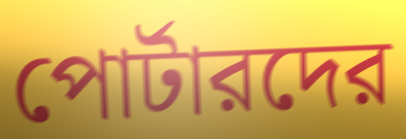
পোর্টারদের